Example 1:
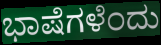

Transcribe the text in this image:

ಭಾಷೆಗಳೆಂದು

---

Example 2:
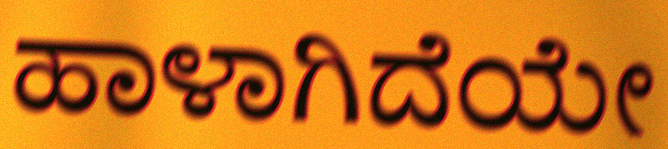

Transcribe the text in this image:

ಹಾಳಾಗಿದೆಯೇ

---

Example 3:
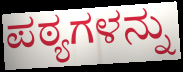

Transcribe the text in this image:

ಪಠ್ಯಗಳನ್ನು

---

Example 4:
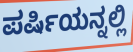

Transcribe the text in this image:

ಪರ್ಷಿಯನ್ನಲ್ಲಿ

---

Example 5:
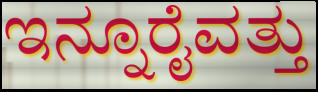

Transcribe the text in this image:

ಇನ್ನೂರೈವತ್ತು